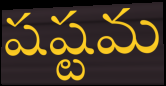
షష్టమ